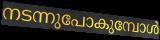
നടന്നുപോകുമ്പോൾ